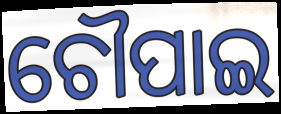
ଚୌପାଇ